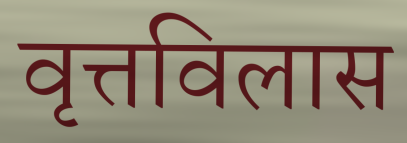
वृत्तविलास